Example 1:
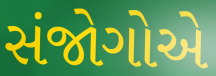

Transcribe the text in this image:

સંજોગોએ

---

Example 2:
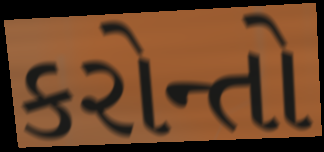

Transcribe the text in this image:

કરોન્તો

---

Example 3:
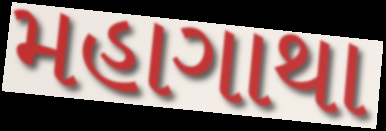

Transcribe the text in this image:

મહાગાથા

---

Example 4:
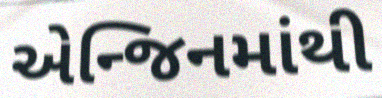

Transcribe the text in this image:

એન્જિનમાંથી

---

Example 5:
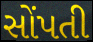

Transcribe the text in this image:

સોંપતી